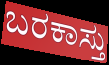
ಬರಕಾಸ್ತು